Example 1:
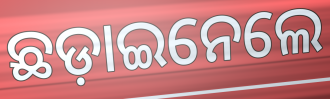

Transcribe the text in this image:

ଛଡ଼ାଇନେଲେ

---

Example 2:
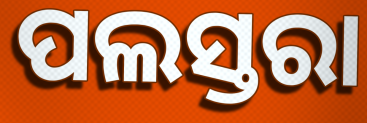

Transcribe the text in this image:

ପଲସ୍ତରା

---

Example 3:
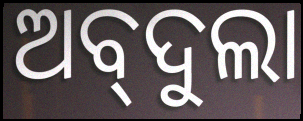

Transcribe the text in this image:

ଅବ୍‌ଦୁଲା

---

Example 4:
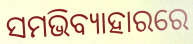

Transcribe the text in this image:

ସମଭିବ୍ୟାହାରରେ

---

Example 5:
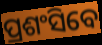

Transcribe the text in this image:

ପ୍ରଶଂସିବେ